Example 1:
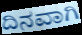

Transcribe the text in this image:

ದಿನವಾಗಿ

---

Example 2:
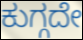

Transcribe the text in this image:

ಕುಗ್ಗದೇ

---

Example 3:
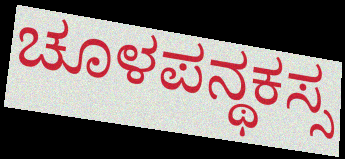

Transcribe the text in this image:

ಚೂಳಪನ್ಥಕಸ್ಸ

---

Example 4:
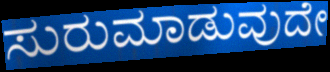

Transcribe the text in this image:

ಸುರುಮಾಡುವುದೇ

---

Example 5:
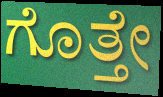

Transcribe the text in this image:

ಗೊತ್ತೇ